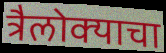
त्रैलोक्याचा